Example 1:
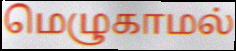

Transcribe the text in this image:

மெழுகாமல்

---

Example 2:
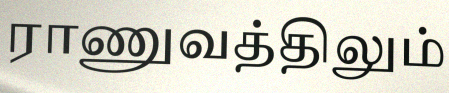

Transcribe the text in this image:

ராணுவத்திலும்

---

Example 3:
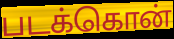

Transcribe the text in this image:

படக்கொன்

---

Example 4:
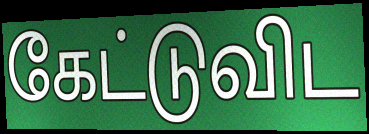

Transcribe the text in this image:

கேட்டுவிட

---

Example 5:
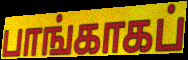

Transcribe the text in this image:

பாங்காகப்